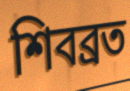
শিবব্রত